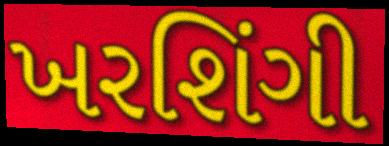
ખરશિંગી